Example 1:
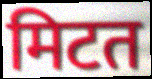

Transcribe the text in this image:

मिटत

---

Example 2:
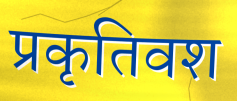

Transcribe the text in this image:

प्रकृतिवश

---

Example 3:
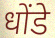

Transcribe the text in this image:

धोंडे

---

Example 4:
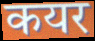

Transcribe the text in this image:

कयर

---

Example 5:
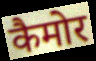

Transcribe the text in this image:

कैमोर